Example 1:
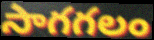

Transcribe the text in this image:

సాగగలం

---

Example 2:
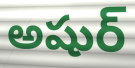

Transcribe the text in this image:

అషుర్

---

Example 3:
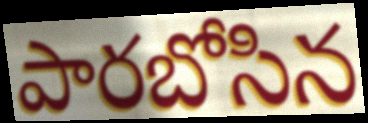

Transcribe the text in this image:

పారబోసిన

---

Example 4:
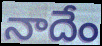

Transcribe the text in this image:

నాదేం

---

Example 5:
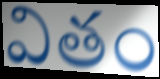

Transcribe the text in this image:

వితం